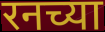
रनच्या